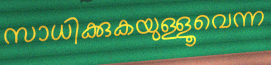
സാധിക്കുകയുള്ളൂവെന്ന